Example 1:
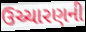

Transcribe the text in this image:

ઉચ્ચારણની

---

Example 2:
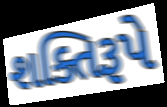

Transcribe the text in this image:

શક્તિરૂપે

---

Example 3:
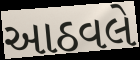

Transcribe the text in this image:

આઠવલે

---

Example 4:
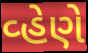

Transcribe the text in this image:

વ્હેણે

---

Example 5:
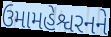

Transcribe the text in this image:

ઉમામહેશ્વરનને